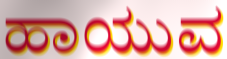
ಹಾಯುವ